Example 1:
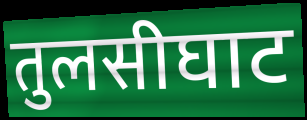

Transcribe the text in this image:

तुलसीघाट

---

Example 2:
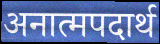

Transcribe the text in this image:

अनात्मपदार्थ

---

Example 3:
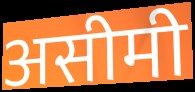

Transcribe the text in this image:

असीमी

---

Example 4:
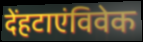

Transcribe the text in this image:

देंहटाएंविवेक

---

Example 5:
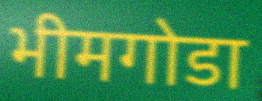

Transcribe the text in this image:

भीमगोडा